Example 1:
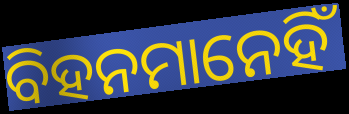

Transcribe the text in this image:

ବିହନମାନେହିଁ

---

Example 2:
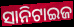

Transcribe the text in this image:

ସାନିଟାଇଜ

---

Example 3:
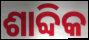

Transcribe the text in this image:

ଶାବ୍ଦିକ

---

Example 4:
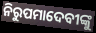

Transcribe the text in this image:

ନିରୁପମାଦେବୀଙ୍କୁ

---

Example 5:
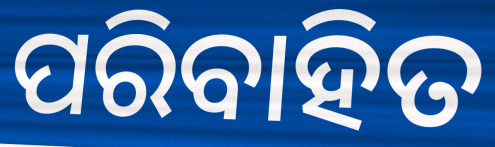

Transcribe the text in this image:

ପରିବାହିତ